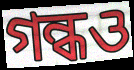
গন্ধও